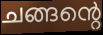
ചങ്ങന്റെ